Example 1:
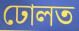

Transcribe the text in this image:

ঢোলত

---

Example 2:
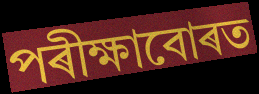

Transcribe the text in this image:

পৰীক্ষাবোৰত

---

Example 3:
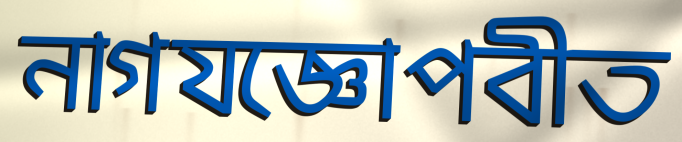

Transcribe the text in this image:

নাগযজ্ঞোপবীত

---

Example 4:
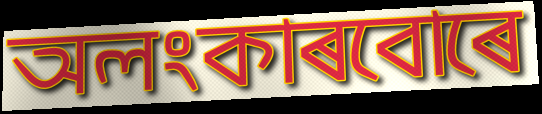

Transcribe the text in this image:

অলংকাৰবোৰে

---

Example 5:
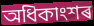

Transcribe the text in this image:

অধিকাংশৰ